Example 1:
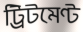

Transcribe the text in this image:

ট্রিটমেণ্ট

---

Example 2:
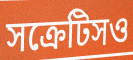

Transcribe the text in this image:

সক্রেটিসও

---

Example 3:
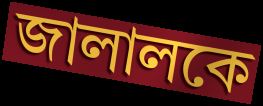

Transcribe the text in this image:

জালালকে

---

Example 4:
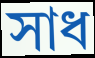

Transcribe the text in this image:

সাধ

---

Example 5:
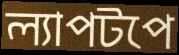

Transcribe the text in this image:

ল্যাপটপে